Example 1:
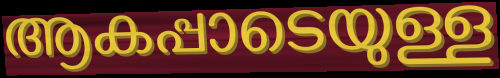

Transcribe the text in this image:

ആകപ്പാടെയുള്ള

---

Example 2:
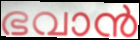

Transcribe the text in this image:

ഭവാൻ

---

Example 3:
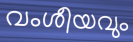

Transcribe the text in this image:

വംശീയവും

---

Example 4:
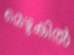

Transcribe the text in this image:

മെഴുകിൽ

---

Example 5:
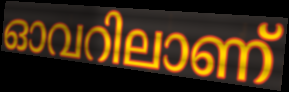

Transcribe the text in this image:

ഓവറിലാണ്